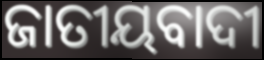
ଜାତୀୟବାଦୀ